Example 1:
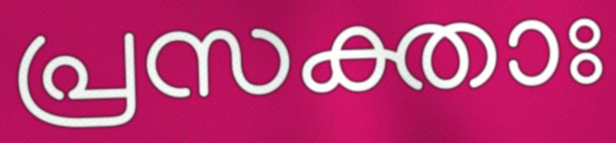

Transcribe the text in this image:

പ്രസക്താഃ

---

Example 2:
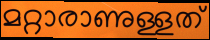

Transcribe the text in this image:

മറ്റാരാണുള്ളത്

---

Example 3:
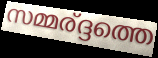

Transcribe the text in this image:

സമ്മര്ദ്ദത്തെ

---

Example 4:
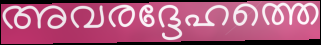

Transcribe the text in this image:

അവരദ്ദേഹത്തെ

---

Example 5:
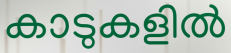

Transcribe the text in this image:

കാടുകളിൽ